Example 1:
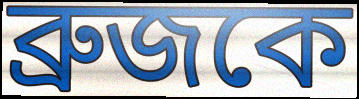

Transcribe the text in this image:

ব্রুজকে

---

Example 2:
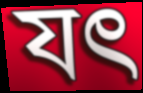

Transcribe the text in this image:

যৎ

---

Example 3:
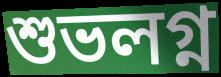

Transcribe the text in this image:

শুভলগ্ন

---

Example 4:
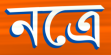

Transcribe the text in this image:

নত্রে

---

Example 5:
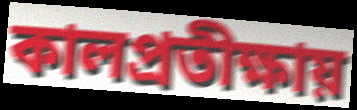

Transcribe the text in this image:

কালপ্রতীক্ষায়